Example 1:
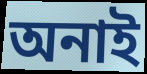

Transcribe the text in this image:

অনাই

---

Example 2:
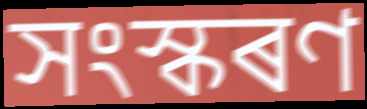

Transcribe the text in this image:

সংস্কৰণ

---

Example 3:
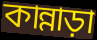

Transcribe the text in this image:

কান্নাড়া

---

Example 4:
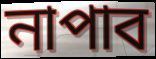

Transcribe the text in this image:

নাপাব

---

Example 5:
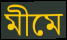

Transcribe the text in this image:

মীমে